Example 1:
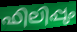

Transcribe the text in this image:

ഫിലിപ്പും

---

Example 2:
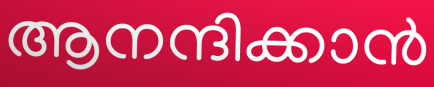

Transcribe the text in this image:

ആനന്ദിക്കാൻ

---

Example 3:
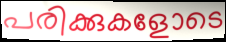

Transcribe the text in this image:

പരിക്കുകളോടെ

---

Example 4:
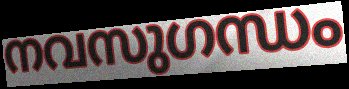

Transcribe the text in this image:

നവസുഗന്ധം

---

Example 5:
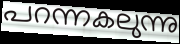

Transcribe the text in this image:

പറന്നകലുന്നു